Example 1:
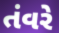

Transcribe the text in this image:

તંવરે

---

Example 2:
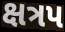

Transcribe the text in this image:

ક્ષત્રપ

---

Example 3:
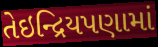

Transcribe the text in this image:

તેઇન્દ્રિયપણામાં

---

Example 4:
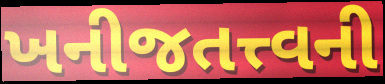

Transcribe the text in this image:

ખનીજતત્ત્વની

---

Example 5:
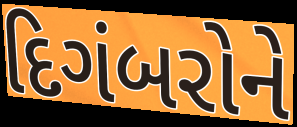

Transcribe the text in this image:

દિગંબરોને